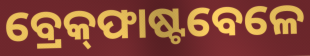
ବ୍ରେକ୍‌ଫାଷ୍ଟବେଳେ